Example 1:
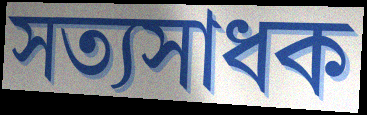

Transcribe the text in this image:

সত্যসাধক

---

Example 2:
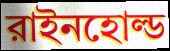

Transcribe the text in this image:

রাইনহোল্ড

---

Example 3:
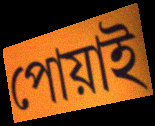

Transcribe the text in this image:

পোয়াই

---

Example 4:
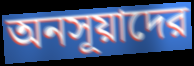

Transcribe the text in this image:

অনসূয়াদের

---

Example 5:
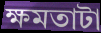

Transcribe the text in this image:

ক্ষমতাটা